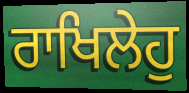
ਰਾਖਿਲੇਹੁ